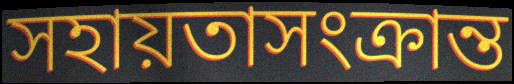
সহায়তাসংক্রান্ত